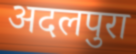
अदलपुरा